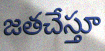
జతచేస్తూ